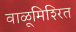
वाळूमिश्रित